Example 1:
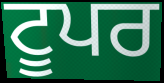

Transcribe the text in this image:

ਟੂਪਰ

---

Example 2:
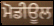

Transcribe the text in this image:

ਮੋਡੀਊਲ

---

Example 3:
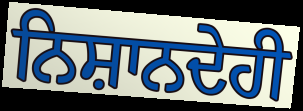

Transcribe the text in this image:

ਨਿਸ਼ਾਨਦੇਹੀ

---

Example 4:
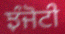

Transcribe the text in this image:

ਝੰਜੋਟੀ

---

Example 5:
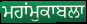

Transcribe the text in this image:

ਮਹਾਂਮੁਕਾਬਲਾ